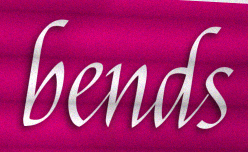
bends